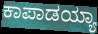
ಕಾಪಾಡಯ್ಯಾ